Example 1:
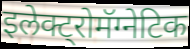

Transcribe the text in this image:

इलेक्ट्रोमॅग्नेटिक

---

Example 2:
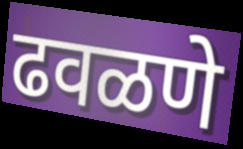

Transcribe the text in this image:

ढवळणे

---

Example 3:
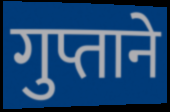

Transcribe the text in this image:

गुप्ताने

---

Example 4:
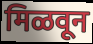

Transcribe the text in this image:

मिळवून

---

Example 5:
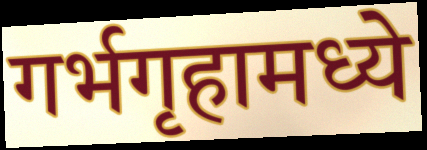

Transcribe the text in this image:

गर्भगृहामध्ये